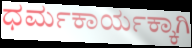
ಧರ್ಮಕಾರ್ಯಕ್ಕಾಗಿ